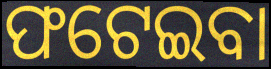
ଫଟେଇବା